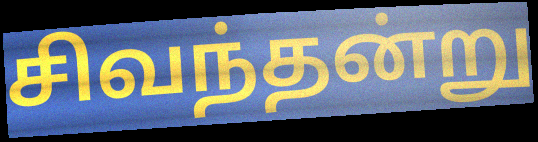
சிவந்தன்று